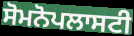
ਸੋਮਨੋਪਲਾਸਟੀ